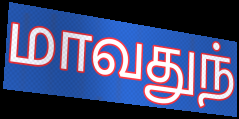
மாவதுந்